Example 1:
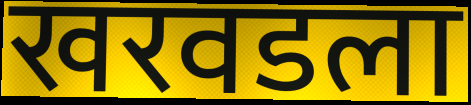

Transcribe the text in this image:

खरवडला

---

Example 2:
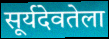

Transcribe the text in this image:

सूर्यदेवतेला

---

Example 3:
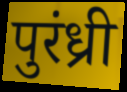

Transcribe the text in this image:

पुरंध्री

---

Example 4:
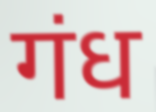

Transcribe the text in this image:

गंध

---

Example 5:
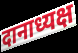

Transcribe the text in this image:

दानाध्यक्ष